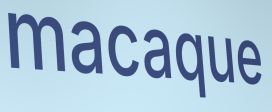
macaque